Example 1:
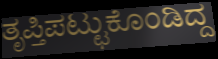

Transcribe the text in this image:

ತೃಪ್ತಿಪಟ್ಟುಕೊಂಡಿದ್ದ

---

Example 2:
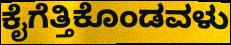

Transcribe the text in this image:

ಕೈಗೆತ್ತಿಕೊಂಡವಳು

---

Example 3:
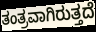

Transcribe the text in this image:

ತಂತ್ರವಾಗಿರುತ್ತದೆ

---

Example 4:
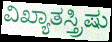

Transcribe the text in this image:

ವಿಖ್ಯಾತಸ್ತ್ರಿಷು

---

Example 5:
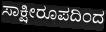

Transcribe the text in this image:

ಸಾಕ್ಷೀರೂಪದಿಂದ